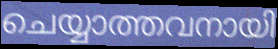
ചെയ്യാത്തവനായി